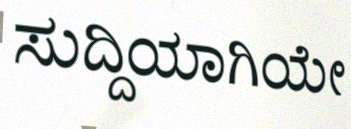
ಸುದ್ದಿಯಾಗಿಯೇ